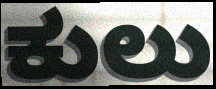
ಕುಲು